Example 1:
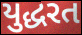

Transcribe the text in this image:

યુદ્ધરત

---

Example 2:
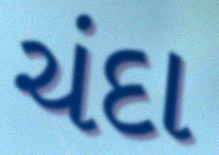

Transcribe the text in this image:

ચંદા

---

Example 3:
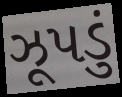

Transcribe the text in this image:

ઝૂપડું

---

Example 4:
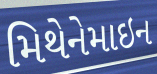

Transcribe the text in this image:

મિથેનેમાઇન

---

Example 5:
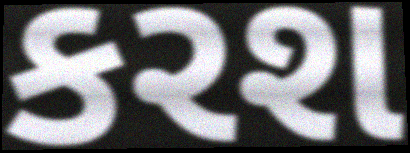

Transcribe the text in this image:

કરશ